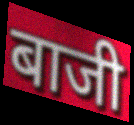
बाजी